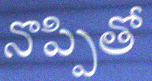
నొప్పితో